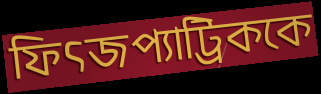
ফিৎজপ্যাট্রিককে